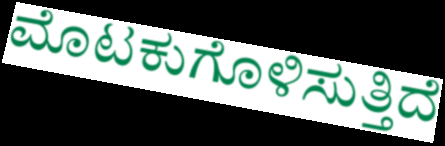
ಮೊಟಕುಗೊಳಿಸುತ್ತಿದೆ